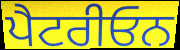
ਪੈਟਰੀਓਨ